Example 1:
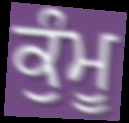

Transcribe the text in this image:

ਕੁੰਮੂ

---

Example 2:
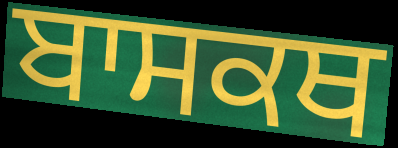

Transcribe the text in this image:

ਬਾਸਕਥ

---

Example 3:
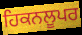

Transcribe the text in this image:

ਹਿਕਨਲੂਪਰ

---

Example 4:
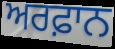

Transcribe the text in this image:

ਅਰਫ਼ਾਨ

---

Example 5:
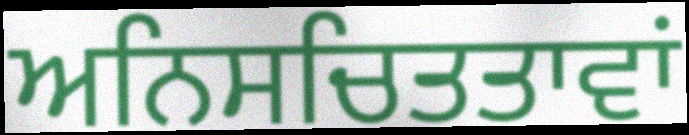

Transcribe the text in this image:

ਅਨਿਸਚਿਤਤਾਵਾਂ